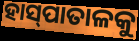
ହାସ୍‍ପାତାଳକୁ